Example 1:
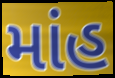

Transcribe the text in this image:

માંહ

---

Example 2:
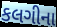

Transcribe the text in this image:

કલગીના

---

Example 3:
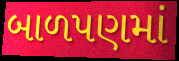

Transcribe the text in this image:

બાળપણમાં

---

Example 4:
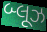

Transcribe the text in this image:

બ્લૂઝ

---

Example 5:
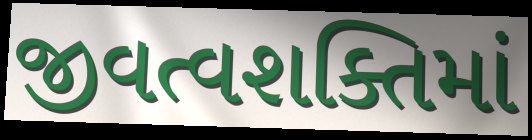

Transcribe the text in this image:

જીવત્વશક્તિમાં